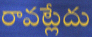
రావట్లేదు